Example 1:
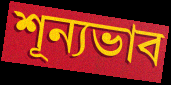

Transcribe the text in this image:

শূন্যভাব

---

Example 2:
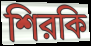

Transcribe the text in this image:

শিরকি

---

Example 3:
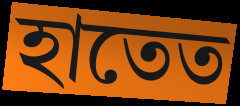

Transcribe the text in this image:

হাতেত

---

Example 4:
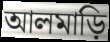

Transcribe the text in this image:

আলমাড়ি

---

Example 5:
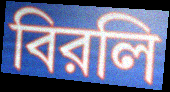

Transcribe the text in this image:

বিরলি